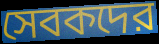
সেবকদের